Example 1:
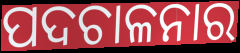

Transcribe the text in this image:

ପଦଚାଳନାର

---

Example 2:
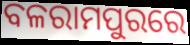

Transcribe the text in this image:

ବଳରାମପୁରରେ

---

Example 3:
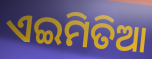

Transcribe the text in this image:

ଏଇମିତିଆ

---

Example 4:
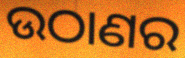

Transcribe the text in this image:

ଉଠାଣର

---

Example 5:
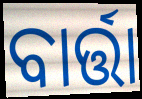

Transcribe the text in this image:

ବାର୍ତ୍ତା